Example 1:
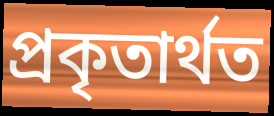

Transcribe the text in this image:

প্ৰকৃতাৰ্থত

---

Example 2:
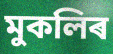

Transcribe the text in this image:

মুকলিৰ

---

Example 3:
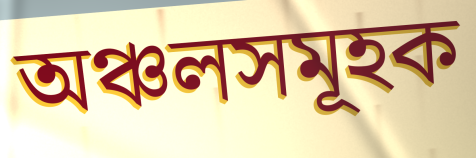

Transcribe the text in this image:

অঞ্চলসমূহক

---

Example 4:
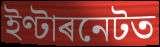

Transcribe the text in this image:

ইণ্টাৰনেটত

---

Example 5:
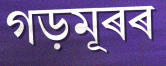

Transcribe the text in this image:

গড়মূৰৰ